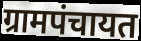
ग्रामपंचायत